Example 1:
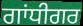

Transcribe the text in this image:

ਗਾਂਧੀਗਰ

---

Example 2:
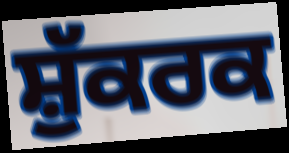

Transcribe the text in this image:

ਸ਼ੁੱਕਰਕ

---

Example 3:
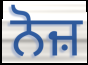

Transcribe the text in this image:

ਨੋਜ਼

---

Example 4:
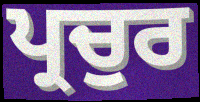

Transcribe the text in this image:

ਪ੍ਰਚੁਰ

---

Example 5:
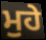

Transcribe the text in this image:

ਮੁਹੇ